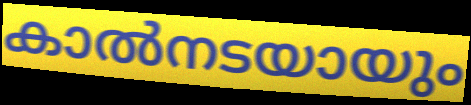
കാൽനടയായും